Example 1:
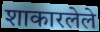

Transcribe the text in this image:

शाकारलेले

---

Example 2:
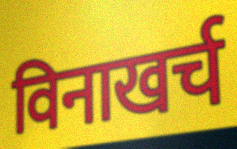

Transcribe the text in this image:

विनाखर्च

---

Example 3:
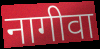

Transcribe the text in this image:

नागीवा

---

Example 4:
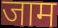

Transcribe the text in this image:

जाम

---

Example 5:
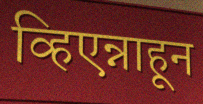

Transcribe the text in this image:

व्हिएन्नाहून